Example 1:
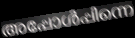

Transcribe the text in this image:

അപ്പോൾപ്പിന്നെ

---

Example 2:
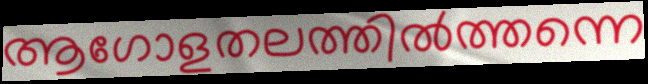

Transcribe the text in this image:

ആഗോളതലത്തിൽത്തന്നെ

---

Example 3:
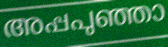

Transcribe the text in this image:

അപ്പപുഞ്ഞാ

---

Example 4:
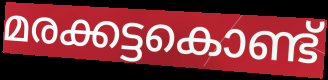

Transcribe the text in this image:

മരക്കട്ടകൊണ്ട്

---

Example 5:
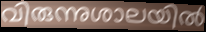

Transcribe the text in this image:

വിരുന്നുശാലയിൽ